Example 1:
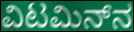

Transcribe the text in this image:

ವಿಟಮಿನ್‌ನ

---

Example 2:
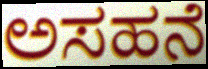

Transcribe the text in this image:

ಅಸಹನೆ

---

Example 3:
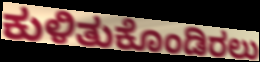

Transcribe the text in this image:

ಕುಳಿತುಕೊಂಡಿರಲು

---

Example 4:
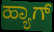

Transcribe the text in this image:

ಹ್ಯಾಗ್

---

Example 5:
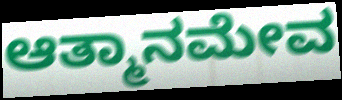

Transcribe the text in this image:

ಆತ್ಮಾನಮೇವ